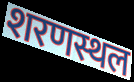
शरणस्थल